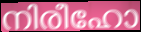
നിരീഹോ